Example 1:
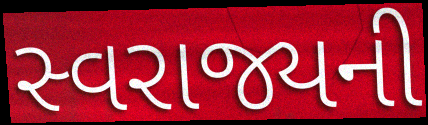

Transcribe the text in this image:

સ્વરાજ્યની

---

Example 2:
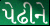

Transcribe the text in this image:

પેઢીને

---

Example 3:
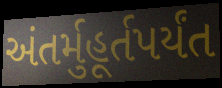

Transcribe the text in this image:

અંતર્મુહૂર્તપર્યંત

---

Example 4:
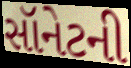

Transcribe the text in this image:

સૉનેટની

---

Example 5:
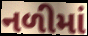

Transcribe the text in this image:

નળીમાં